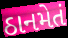
ઠાનમેતં